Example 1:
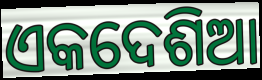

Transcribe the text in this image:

ଏକଦେଶିଆ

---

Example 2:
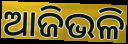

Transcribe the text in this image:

ଆଜିଭଳି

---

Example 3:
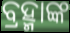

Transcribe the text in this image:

ବ୍ରହ୍ମାଙ୍କ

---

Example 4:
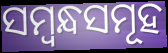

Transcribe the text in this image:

ସମ୍ୱନ୍ଧସମୂହ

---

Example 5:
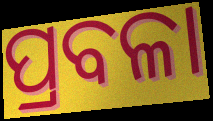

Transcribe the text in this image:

ପ୍ରବଳା